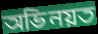
অভিনয়ত